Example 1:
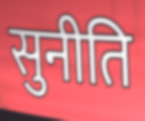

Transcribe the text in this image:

सुनीति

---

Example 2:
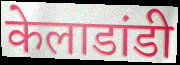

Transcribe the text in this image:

केलाडांडी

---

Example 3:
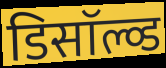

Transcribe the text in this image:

डिसॉल्व्ड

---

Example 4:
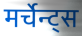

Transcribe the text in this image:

मर्चेन्ट्स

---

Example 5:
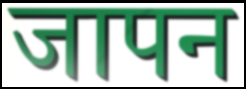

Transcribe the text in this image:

जापन